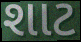
શાટ